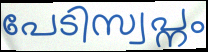
പേടിസ്വപ്നം